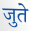
जुते